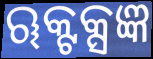
ୠକ୍ଟକ୍ସଜ୍ଞ